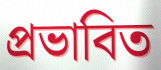
প্ৰভাবিত